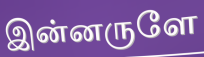
இன்னருளே